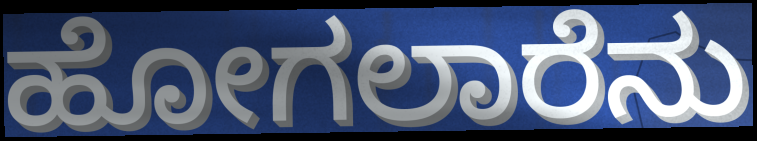
ಹೋಗಲಾರೆನು